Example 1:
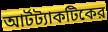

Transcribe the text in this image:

আর্টট্যাকটিকের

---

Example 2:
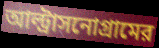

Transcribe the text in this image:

আল্ট্রাসনোগ্রামের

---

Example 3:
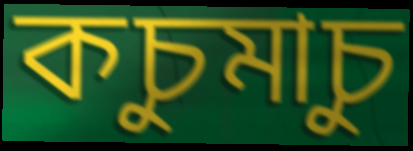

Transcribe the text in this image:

কচুমাচু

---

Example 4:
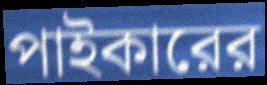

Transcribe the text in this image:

পাইকারের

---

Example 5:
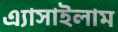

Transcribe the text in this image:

এ্যাসাইলাম